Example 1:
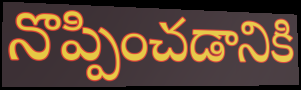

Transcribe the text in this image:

నొప్పించడానికి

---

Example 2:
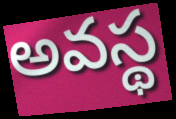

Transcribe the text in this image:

అవస్థ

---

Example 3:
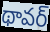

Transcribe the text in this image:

థావర్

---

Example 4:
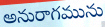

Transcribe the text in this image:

అనురాగమును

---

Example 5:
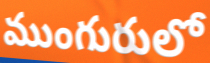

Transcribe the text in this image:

ముంగురులో